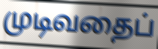
முடிவதைப்